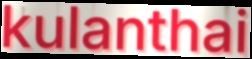
kulanthai